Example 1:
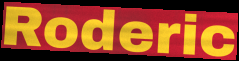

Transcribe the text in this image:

Roderic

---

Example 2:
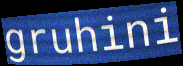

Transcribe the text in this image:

gruhini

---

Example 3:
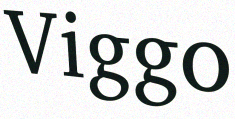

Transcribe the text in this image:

Viggo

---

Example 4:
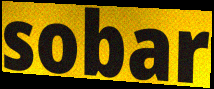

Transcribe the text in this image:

sobar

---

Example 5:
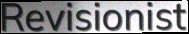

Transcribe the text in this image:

Revisionist